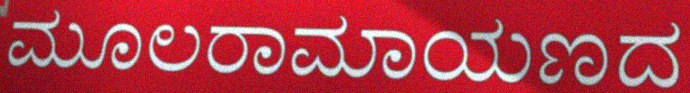
ಮೂಲರಾಮಾಯಣದ